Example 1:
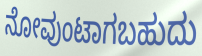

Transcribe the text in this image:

ನೋವುಂಟಾಗಬಹುದು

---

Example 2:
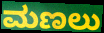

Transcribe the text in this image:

ಮಣಲು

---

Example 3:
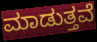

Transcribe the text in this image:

ಮಾಡುತ್ತವೆ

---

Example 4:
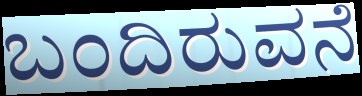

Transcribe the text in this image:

ಬಂದಿರುವನೆ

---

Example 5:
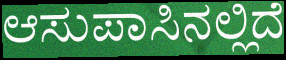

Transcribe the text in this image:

ಆಸುಪಾಸಿನಲ್ಲಿದೆ